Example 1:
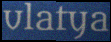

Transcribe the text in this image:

ulatya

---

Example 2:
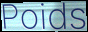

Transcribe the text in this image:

Poids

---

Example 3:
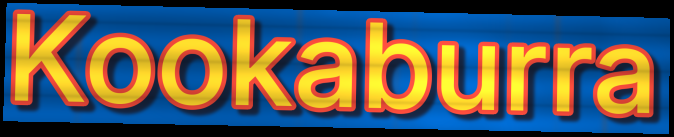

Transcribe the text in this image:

Kookaburra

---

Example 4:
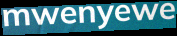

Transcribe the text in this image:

mwenyewe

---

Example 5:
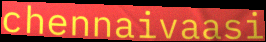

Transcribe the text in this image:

chennaivaasi